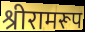
श्रीरामरूप